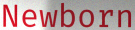
Newborn